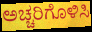
ಅಚ್ಚರಿಗೊಳಿಸಿ